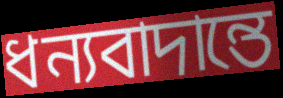
ধন্যবাদান্তে